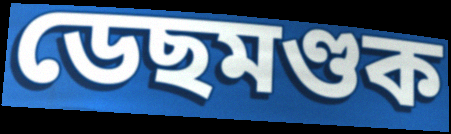
ডেছমণ্ডক